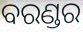
ବରଣ୍ଡର